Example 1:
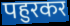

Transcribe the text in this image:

पहुरकर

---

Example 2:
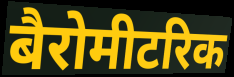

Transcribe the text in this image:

बैरोमीटरिक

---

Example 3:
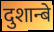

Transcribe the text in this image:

दुशान्बे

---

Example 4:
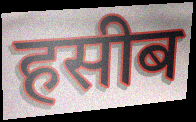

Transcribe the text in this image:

हसीब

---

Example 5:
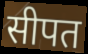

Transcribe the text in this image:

सीपत